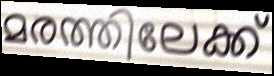
മരത്തിലേക്ക്